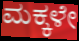
ಮಕ್ಕಳೇ